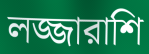
লজ্জারাশি